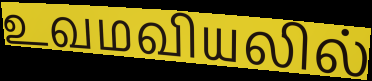
உவமவியலில்